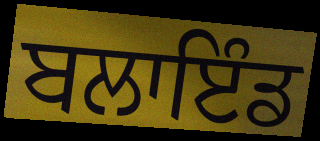
ਬਲਾਇੰਡ